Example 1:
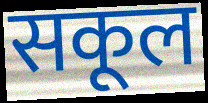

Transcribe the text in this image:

सकूल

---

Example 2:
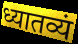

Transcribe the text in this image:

ध्यातव्यं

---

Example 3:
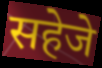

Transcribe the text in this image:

सहेजे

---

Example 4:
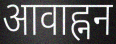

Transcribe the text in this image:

आवाह्नन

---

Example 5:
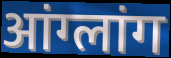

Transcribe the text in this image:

आंग्लांग